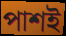
পাশই